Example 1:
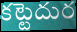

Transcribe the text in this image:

కట్టెదుర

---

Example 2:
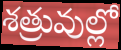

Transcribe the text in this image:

శత్రువుల్లో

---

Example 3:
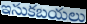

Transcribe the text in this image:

ఇసుకబయలు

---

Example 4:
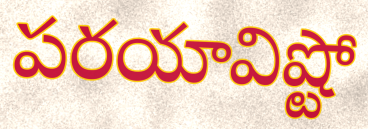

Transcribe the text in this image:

పరయావిష్టో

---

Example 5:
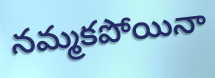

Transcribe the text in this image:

నమ్మకపోయినా